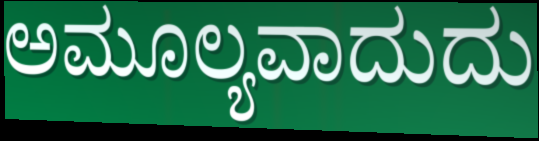
ಅಮೂಲ್ಯವಾದುದು